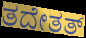
ತದೇತತ್